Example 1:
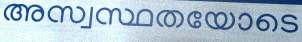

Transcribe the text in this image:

അസ്വസ്ഥതയോടെ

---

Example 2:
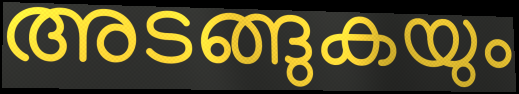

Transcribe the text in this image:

അടങ്ങുകയും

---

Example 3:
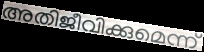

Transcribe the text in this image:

അതിജീവിക്കുമെന്ന്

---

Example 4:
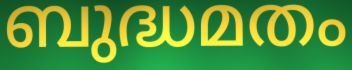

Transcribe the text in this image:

ബുദ്ധമതം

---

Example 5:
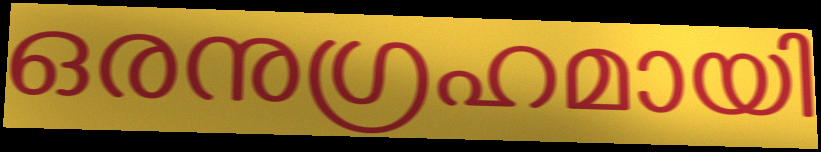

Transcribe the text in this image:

ഒരനുഗ്രഹമായി